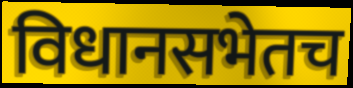
विधानसभेतच